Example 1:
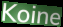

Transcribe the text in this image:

Koine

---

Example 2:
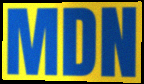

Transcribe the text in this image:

MDN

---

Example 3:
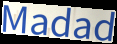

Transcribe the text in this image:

Madad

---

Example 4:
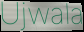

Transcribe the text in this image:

Ujwala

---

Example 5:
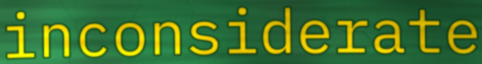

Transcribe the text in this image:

inconsiderate